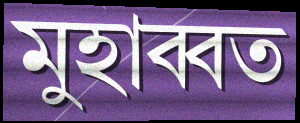
মুহাব্বত